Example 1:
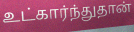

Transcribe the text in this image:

உட்கார்ந்துதான்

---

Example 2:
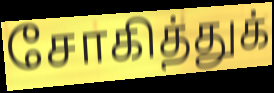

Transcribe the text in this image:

சோகித்துக்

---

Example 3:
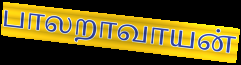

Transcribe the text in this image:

பாலறாவாயன்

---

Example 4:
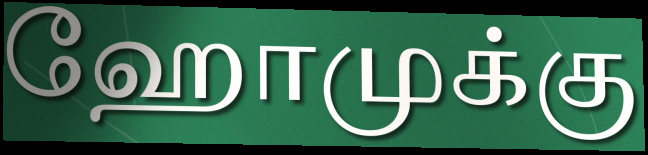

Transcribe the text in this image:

ஹோமுக்கு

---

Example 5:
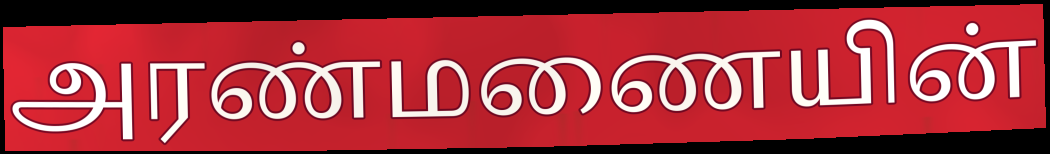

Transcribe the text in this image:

அரண்மணையின்